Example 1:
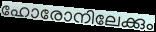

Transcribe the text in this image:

ഹോരോനിലേക്കും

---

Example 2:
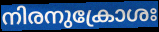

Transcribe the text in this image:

നിരനുക്രോശഃ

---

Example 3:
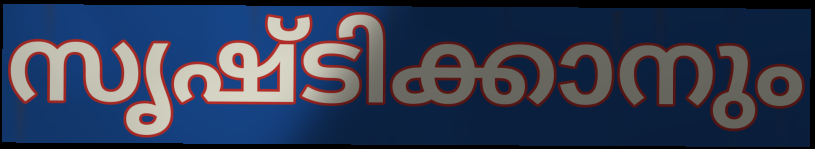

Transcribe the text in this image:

സൃഷ്ടിക്കാനും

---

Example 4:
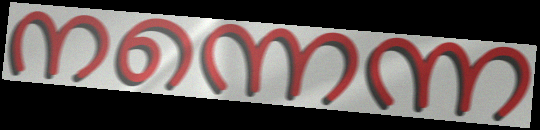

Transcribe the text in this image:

നന്നെന്ന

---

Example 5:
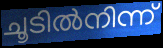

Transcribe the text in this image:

ചൂടിൽനിന്ന്